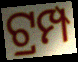
ଟ୍ରମ୍ପ